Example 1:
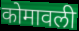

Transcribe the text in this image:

कोमावली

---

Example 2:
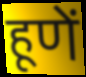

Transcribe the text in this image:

हूणें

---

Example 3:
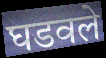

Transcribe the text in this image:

घडवले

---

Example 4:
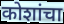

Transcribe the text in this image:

कोशांचा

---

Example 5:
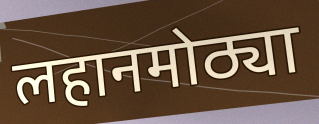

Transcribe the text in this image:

लहानमोठ्या